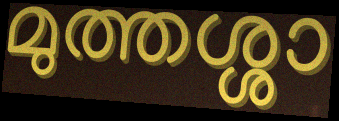
മുത്തശ്ശാ